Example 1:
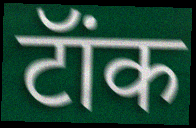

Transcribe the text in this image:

टॉंक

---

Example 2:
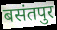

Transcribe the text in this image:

बसंतपुर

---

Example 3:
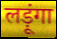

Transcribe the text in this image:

लड़ूंगा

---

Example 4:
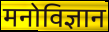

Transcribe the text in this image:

मनोविज्ञान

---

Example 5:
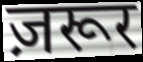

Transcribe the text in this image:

ज़रूर